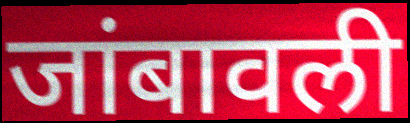
जांबावली